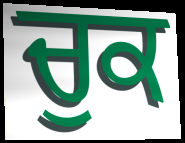
ਚੁਕ